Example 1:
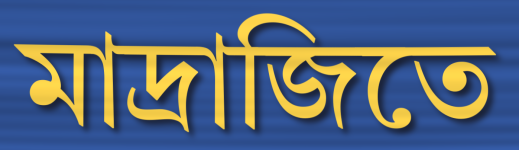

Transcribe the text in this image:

মাদ্রাজিতে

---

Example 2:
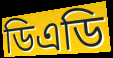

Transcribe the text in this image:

ডিএডি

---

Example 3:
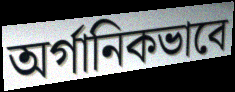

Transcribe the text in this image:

অর্গানিকভাবে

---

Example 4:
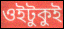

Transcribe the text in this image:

ওইটুকুই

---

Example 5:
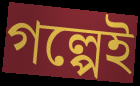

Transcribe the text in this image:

গল্পেই